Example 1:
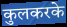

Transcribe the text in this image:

कुलकरके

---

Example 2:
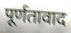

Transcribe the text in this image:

पूर्णतावाद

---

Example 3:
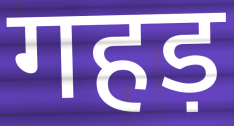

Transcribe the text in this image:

गहड़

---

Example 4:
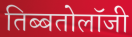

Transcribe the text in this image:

तिब्बतोलॉजी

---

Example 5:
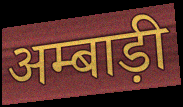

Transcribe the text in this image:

अम्बाड़ी